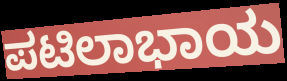
ಪಟಿಲಾಭಾಯ